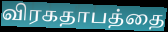
விரகதாபத்தை